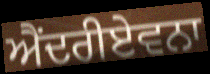
ਐਂਦਰੀਏਵਨਾ